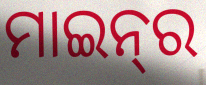
ମାଇନ୍‍ର